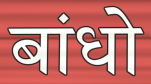
बांधो